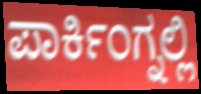
ಪಾರ್ಕಿಂಗ್ನಲ್ಲಿ